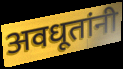
अवधूतांनी